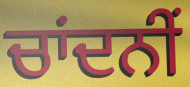
ਚਾਂਦਨੀਂ